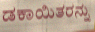
ಡಕಾಯಿತರನ್ನು